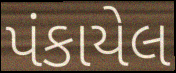
પંકાયેલ